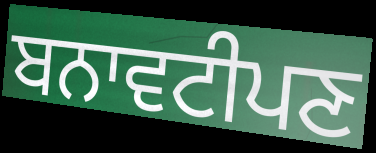
ਬਨਾਵਟੀਪਣ